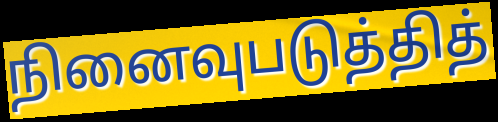
நினைவுபடுத்தித்